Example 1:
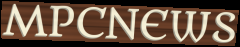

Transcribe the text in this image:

MPCNEWS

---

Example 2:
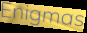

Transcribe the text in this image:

Enigmas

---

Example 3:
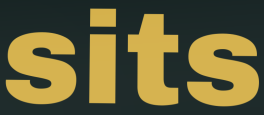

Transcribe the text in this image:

sits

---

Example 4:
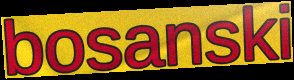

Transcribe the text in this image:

bosanski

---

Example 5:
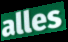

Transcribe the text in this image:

alles